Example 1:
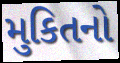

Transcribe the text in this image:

મુકિતનો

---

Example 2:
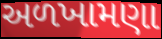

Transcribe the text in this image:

અળખામણા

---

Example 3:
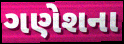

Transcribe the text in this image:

ગણેશના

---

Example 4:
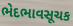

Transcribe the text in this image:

ભેદભાવસૂચક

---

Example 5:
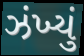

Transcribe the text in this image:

ઝંખ્યું